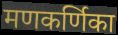
मणकर्णिका